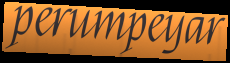
perumpeyar